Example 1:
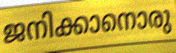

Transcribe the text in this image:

ജനിക്കാനൊരു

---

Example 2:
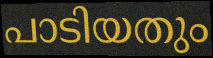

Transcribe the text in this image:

പാടിയതും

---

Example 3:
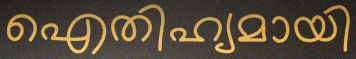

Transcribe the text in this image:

ഐതിഹ്യമായി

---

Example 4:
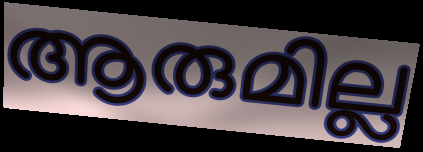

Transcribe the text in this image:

ആരുമില്ല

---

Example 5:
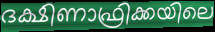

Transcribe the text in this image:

ദക്ഷിണാഫ്രിക്കയിലെ